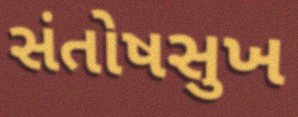
સંતોષસુખ